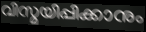
വിസ്മയിപ്പിക്കാനും